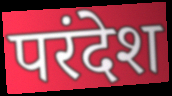
परंदेश